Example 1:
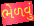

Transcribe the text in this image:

ભેળવું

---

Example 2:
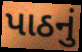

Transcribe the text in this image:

પાઠનું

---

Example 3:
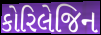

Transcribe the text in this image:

કોરિલેજિન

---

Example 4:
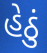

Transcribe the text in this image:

હેઠું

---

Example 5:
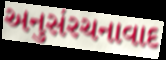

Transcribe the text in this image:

અનુસંરચનાવાદ